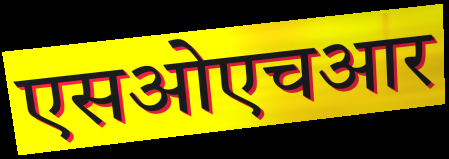
एसओएचआर